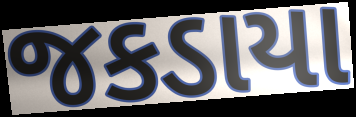
જકડાયા